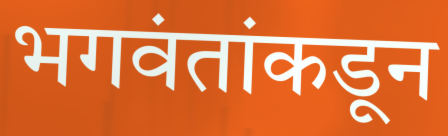
भगवंतांकडून